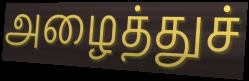
அழைத்துச்